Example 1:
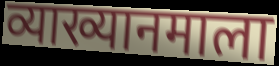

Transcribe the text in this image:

व्याख्यानमाला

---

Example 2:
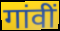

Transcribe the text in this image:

गांवीं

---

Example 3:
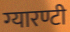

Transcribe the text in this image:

ग्यारण्टी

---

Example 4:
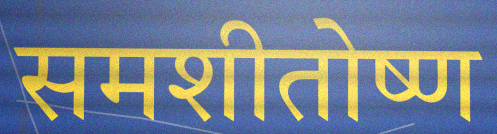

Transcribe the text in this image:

समशीतोष्ण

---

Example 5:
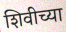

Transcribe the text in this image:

शिवीच्या